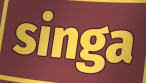
singa